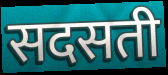
सदसती